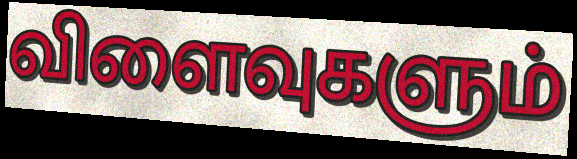
விளைவுகளும்